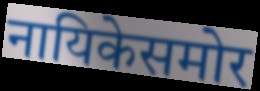
नायिकेसमोर